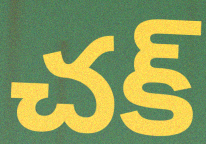
చక్